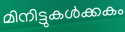
മിനിട്ടുകൾക്കകം